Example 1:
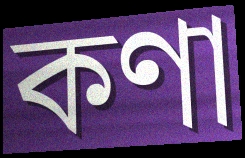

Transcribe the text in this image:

কণা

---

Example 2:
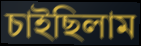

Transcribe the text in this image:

চাইছিলাম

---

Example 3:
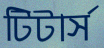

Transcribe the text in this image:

টিটার্স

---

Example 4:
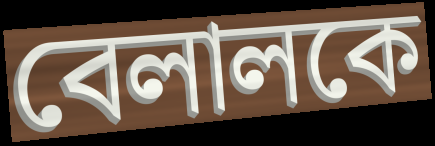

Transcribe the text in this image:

বেলালকে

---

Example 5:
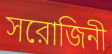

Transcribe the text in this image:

সরোজিনী